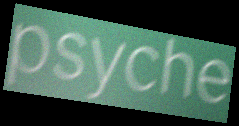
psyche